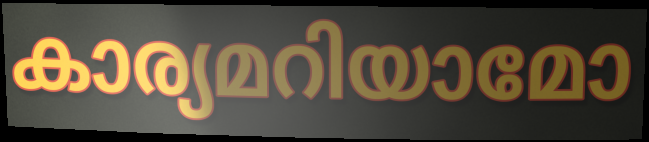
കാര്യമറിയാമോ